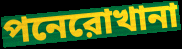
পনেরোখানা